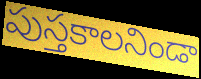
పుస్తకాలనిండా